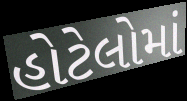
હોટેલોમાં